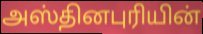
அஸ்தினபுரியின்